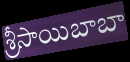
శ్రీసాయిబాబా